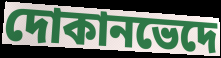
দোকানভেদে